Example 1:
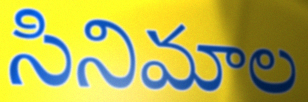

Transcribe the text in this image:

సినిమాల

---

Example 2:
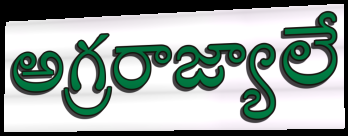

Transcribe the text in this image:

అగ్రరాజ్యాలే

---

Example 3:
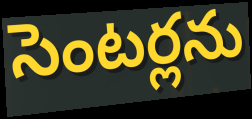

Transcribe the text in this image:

సెంటర్లను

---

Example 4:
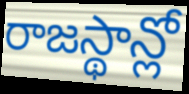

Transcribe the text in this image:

రాజస్థాన్లో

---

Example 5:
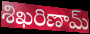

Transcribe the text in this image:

శిఖరిణామ్